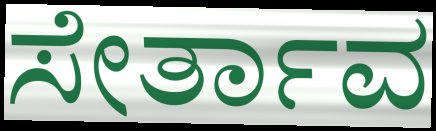
ಸೇರ್ತಾವ